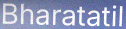
Bharatatil